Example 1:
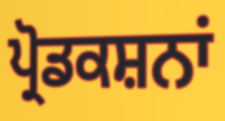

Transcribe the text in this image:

ਪ੍ਰੋਡਕਸ਼ਨਾਂ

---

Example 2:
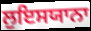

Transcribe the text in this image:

ਲੁਇਸਯਾਨਾ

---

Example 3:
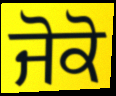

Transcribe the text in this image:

ਜੋਕੋ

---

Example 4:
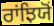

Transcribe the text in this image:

ਰਾਂਝਿਯੋਂ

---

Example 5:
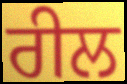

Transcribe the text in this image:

ਰੀਲ